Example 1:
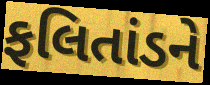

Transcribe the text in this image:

ફલિતાંડને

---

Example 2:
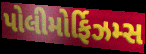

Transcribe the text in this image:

પોલીમોર્ફિઝમ્સ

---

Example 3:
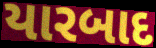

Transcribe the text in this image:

યારબાદ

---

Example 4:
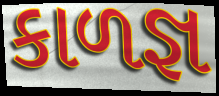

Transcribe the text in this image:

કાળજ્ઞ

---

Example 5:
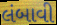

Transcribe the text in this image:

લંબાવી